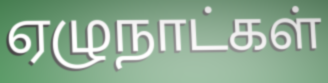
ஏழுநாட்கள்